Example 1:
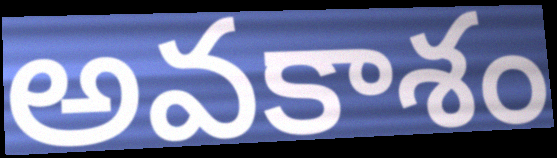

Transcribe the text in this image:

అవకాశం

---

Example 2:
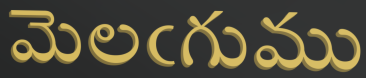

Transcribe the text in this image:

మెలఁగుము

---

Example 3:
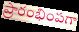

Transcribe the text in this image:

ప్రారంభింపగా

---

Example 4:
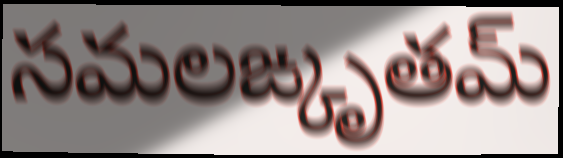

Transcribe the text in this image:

సమలఙ్కృతమ్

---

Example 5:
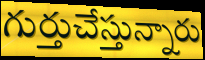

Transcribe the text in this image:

గుర్తుచేస్తున్నారు